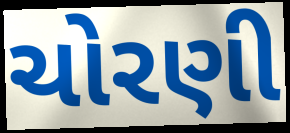
ચોરણી